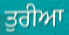
ਤੁਰੀਆ